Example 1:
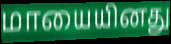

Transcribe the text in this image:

மாயையினது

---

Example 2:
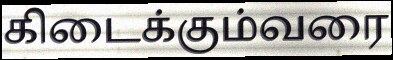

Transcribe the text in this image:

கிடைக்கும்வரை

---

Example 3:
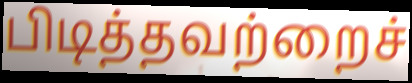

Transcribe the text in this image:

பிடித்தவற்றைச்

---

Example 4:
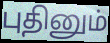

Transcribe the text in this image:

புதினும்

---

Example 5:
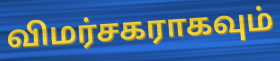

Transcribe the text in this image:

விமர்சகராகவும்